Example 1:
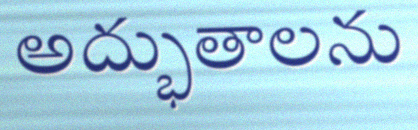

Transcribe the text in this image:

అద్భుతాలను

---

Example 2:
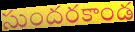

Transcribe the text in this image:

సుందరకాండ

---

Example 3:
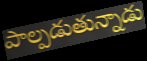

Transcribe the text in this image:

పాల్పడుతున్నాడు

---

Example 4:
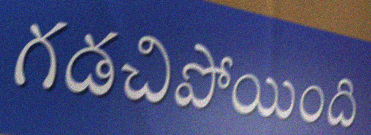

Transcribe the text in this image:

గడచిపోయింది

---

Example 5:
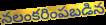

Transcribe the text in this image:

నలంకరింపబడిన